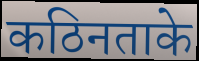
कठिनताके